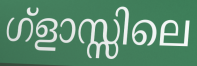
ഗ്ളാസ്സിലെ